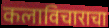
कलाविचाराचा